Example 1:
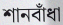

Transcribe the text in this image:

শানবাঁধা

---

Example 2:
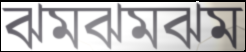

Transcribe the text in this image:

ঝমঝমঝম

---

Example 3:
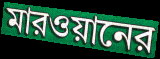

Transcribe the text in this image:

মারওয়ানের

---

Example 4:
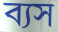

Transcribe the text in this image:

ব্যস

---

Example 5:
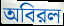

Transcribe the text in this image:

অবিরল